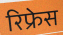
रिफ्रेस